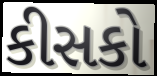
કીસકો